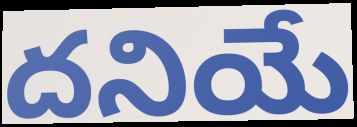
దనియే